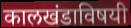
कालखंडाविषयी